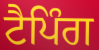
ਟੈਪਿੰਗ